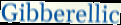
Gibberellic